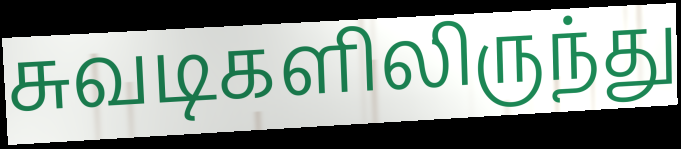
சுவடிகளிலிருந்து